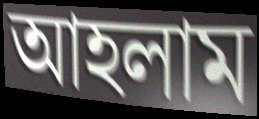
আহলাম